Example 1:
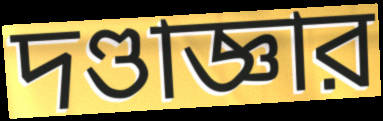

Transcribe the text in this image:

দণ্ডাজ্ঞার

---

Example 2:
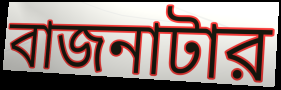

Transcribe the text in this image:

বাজনাটার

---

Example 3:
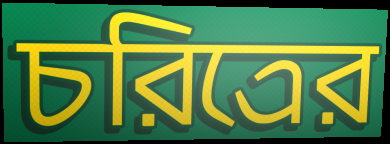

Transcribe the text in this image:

চরিত্রের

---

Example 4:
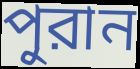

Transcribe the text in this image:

পুরান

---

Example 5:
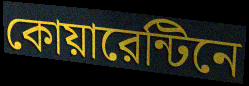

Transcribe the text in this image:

কোয়ারেন্টিনে